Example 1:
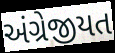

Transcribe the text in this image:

અંગ્રેજીયત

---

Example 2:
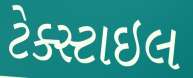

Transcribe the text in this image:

ટેક્સ્ટાઇલ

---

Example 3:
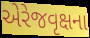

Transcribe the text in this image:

એરેજવૃક્ષના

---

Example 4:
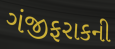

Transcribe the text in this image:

ગંજીફરાકની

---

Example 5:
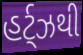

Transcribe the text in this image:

હર્ટ્ઝથી